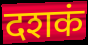
दशकं